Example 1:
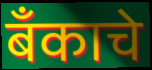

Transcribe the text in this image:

बँकाचे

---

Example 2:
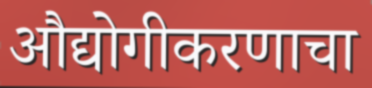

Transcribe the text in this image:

औद्योगीकरणाचा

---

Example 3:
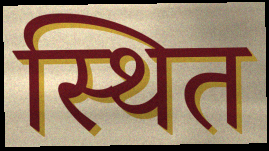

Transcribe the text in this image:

स्थित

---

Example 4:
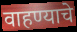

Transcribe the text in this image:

वाहण्याचे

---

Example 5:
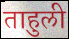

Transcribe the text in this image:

ताहुली